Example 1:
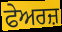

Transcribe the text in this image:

ਫੇਅਰਜ਼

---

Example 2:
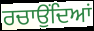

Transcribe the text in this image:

ਰਚਾਉਂਦਿਆਂ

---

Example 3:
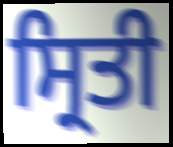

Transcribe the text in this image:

ਸ੍ਰਿਤੀ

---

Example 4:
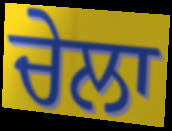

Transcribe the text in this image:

ਚੇਲਾ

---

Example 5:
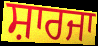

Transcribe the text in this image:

ਸ਼ਾਰਜਾ